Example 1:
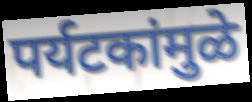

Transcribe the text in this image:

पर्यटकांमुळे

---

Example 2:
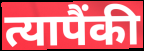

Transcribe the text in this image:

त्यापैंकी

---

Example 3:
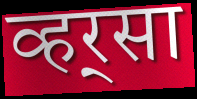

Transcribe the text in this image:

व्हर्सा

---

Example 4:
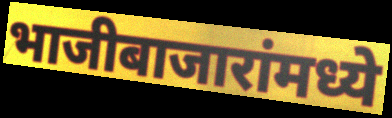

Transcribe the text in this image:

भाजीबाजारांमध्ये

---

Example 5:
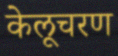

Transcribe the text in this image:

केलूचरण